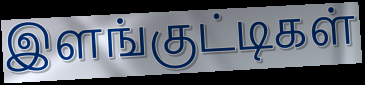
இளங்குட்டிகள்